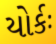
યોર્કઃ